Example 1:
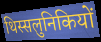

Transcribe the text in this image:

थिस्सलुनिकियों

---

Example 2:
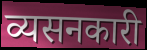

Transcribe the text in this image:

व्यसनकारी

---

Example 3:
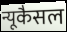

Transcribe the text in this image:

न्यूकैसल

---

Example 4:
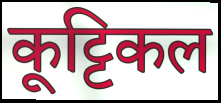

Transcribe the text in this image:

कूट्टिकल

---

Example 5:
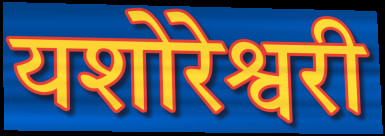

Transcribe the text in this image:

यशोरेश्वरी